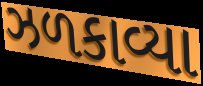
ઝળકાવ્યા